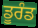
ਡੂਰੰਡ